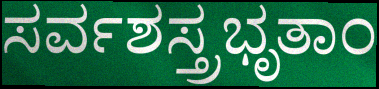
ಸರ್ವಶಸ್ತ್ರಭೃತಾಂ